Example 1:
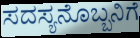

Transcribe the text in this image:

ಸದಸ್ಯನೊಬ್ಬನಿಗೆ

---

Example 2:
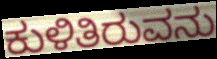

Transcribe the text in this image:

ಕುಳಿತಿರುವನು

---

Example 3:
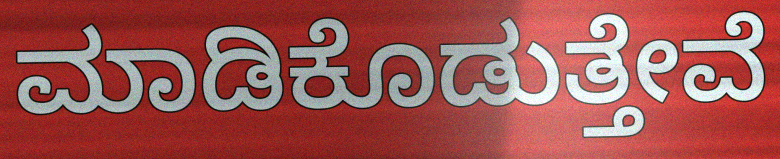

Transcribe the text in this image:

ಮಾಡಿಕೊಡುತ್ತೇವೆ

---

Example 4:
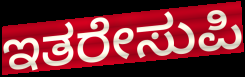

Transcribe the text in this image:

ಇತರೇಸುಪಿ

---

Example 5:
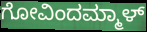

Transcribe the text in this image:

ಗೋವಿಂದಮ್ಮಾಳ್